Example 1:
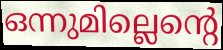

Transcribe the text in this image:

ഒന്നുമില്ലെന്റെ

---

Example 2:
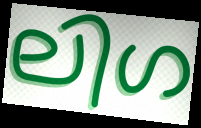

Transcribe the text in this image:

ലിഗ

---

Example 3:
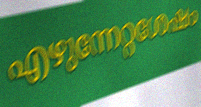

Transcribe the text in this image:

എഴുന്നേറ്റശേഷം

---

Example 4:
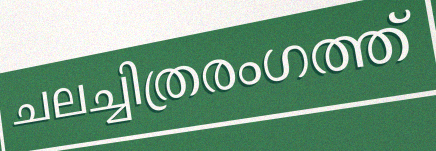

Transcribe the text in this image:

ചലച്ചിത്രരംഗത്ത്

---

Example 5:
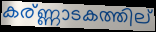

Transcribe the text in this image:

കര്ണ്ണാടകത്തില്